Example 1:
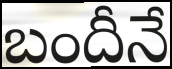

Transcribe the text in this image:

బందీనే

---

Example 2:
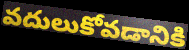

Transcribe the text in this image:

వదులుకోవడానికి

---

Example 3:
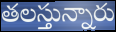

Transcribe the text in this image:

తలస్తున్నారు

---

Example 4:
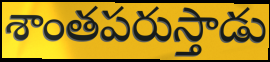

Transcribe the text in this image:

శాంతపరుస్తాడు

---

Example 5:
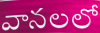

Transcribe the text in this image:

వానలలో